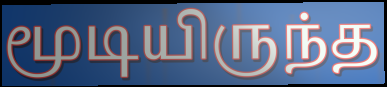
மூடியிருந்த